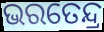
ଭରତେନ୍ଦ୍ର